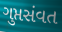
ગુપ્તસંવત